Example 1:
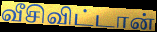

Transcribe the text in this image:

வீசிவிட்டான்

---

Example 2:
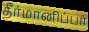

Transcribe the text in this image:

தீர்மானிப்பர்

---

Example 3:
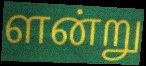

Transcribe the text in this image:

ளன்று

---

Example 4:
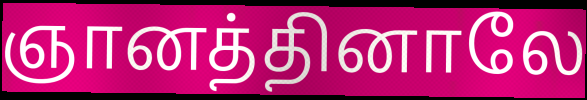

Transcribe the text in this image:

ஞானத்தினாலே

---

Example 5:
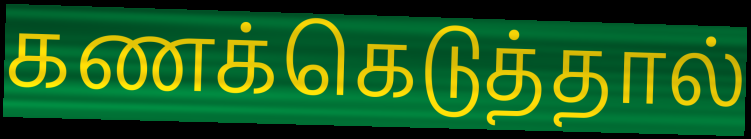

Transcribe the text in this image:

கணக்கெடுத்தால்